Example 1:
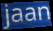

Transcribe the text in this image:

jaan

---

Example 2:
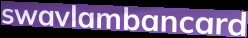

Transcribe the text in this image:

swavlambancard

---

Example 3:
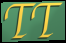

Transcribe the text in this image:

TT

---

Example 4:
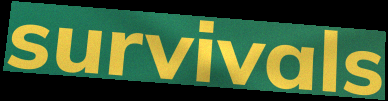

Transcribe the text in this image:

survivals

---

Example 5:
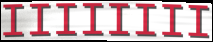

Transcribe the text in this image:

IIIIIIII